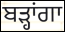
ਬੜ੍ਹਾਂਗਾ